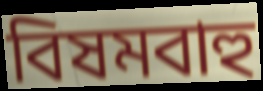
বিষমবাহু